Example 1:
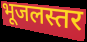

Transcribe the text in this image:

भूजलस्तर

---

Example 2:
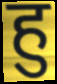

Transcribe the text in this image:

हु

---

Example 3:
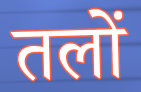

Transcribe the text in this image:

तलों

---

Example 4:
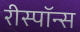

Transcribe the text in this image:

रीस्पॉन्स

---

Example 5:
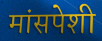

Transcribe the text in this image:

मांसपेशी